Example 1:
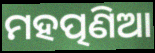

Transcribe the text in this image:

ମହତ୍ପଣିଆ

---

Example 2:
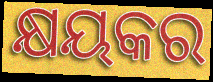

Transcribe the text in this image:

କ୍ଷୟକର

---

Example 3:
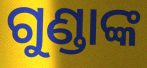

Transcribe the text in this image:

ଗୁଣ୍ଡାଙ୍କ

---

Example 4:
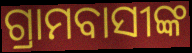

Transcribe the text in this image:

ଗ୍ରାମବାସୀଙ୍କ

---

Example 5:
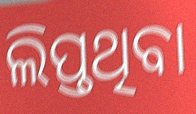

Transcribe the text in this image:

ଲିପ୍ତଥିବା